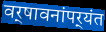
वर्षावनांपर्यंत